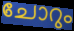
ചോറും